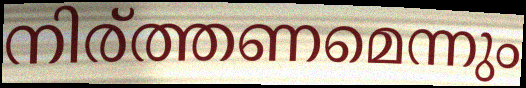
നിര്ത്തണമെന്നും